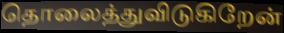
தொலைத்துவிடுகிறேன்